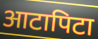
आटापिटा